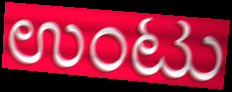
ಉಂಟು